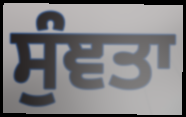
ਸੁੰਞਤਾ